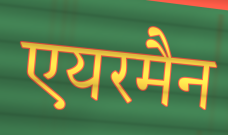
एयरमैन